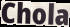
Chola